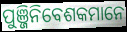
ପୁଞ୍ଜିନିବେଶକମାନେ